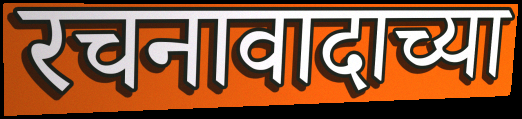
रचनावादाच्या